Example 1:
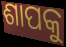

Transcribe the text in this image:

ଶାପକୁ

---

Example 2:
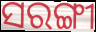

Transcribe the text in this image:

ସରଙ୍ଗୀ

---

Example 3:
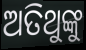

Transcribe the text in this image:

ଅତିଥୁଙ୍କୁ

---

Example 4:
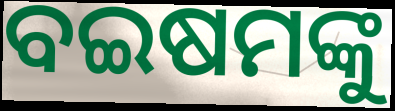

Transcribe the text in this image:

ବଇଷମଙ୍କୁ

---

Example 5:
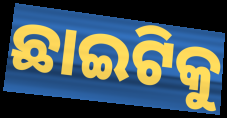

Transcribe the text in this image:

ଛାଇଟିକୁ